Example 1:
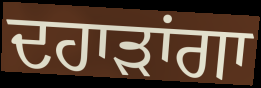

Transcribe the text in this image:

ਦਹਾੜਾਂਗਾ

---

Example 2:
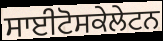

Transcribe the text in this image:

ਸਾਈਟੋਸਕੇਲੇਟਨ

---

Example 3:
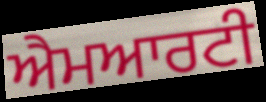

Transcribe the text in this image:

ਐਮਆਰਟੀ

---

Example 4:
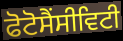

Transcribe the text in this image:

ਫੋਟੋਸੈਂਸੀਵਿਟੀ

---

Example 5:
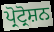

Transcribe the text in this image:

ਪ੍ਰੋਟ੍ਰੋਸ਼ਨ